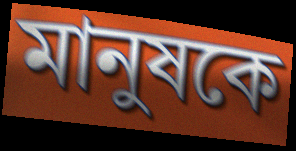
মানুষকে